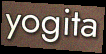
yogita